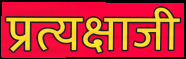
प्रत्यक्षाजी